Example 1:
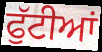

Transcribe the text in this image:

ਫੁੱਟੀਆਂ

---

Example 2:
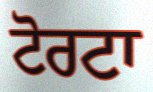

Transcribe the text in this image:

ਟੋਰਟਾ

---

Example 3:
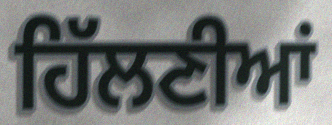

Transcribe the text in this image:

ਹਿੱਲਣੀਆਂ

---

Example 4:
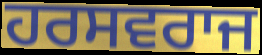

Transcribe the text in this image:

ਹਰਸਵਰਾਜ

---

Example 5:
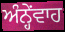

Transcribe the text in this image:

ਅੰਨ੍ਹੇਂਵਾਹ